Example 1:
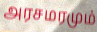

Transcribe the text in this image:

அரசமரமும்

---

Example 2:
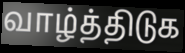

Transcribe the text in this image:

வாழ்த்திடுக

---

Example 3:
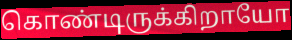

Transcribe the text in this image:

கொண்டிருக்கிறாயோ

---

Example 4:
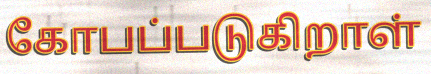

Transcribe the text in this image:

கோபப்படுகிறாள்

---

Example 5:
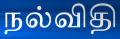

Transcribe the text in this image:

நல்விதி